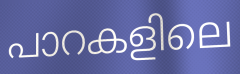
പാറകളിലെ